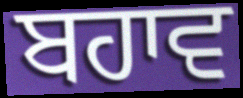
ਬਹਾਵ